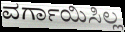
ವರ್ಗಾಯಿಸಿಲ್ಲ